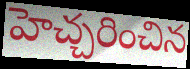
హెచ్చరించిన